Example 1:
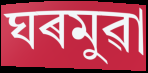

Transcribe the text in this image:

ঘৰমুৱা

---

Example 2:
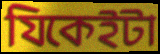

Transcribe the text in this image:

যিকেইটা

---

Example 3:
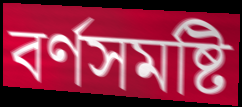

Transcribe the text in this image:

বৰ্ণসমষ্টি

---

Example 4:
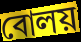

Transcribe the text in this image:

বোলয়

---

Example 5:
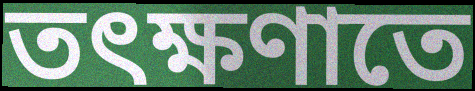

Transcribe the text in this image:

তৎক্ষণাতে